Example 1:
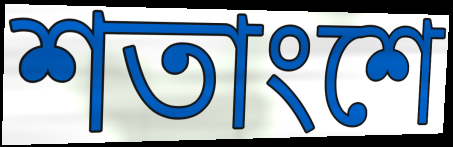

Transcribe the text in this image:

শতাংশে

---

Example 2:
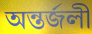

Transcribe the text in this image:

অন্তর্জলী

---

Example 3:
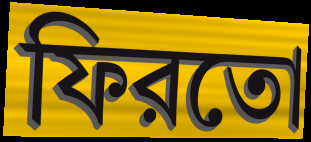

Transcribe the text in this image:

ফিরতো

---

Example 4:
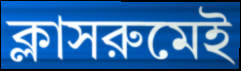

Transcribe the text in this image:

ক্লাসরুমেই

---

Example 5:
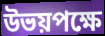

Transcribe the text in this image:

উভয়পক্ষে